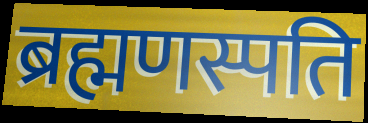
ब्रह्मणस्पति